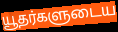
யூதர்களுடைய